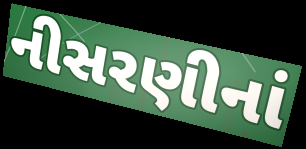
નીસરણીનાં